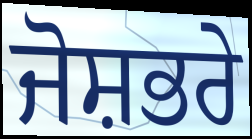
ਜੋਸ਼ਭਰੇ